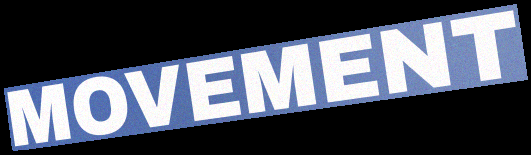
MOVEMENT